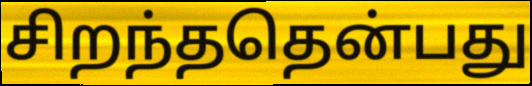
சிறந்ததென்பது